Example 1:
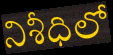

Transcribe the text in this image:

నిశీధిలో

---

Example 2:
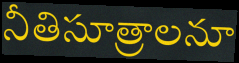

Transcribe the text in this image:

నీతిసూత్రాలనూ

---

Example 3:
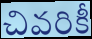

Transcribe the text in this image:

చివరికీ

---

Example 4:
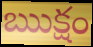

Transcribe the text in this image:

ఋక్షం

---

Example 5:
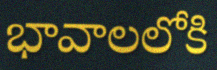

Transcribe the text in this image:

భావాలలోకి